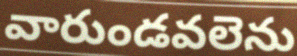
వారుండవలెను